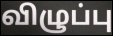
விழுப்பு